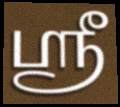
ஸ்ரீ